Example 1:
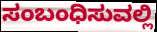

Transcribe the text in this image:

ಸಂಬಂಧಿಸುವಲ್ಲಿ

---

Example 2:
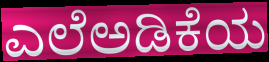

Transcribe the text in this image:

ಎಲೆಅಡಿಕೆಯ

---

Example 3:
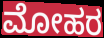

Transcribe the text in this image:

ಮೋಹರ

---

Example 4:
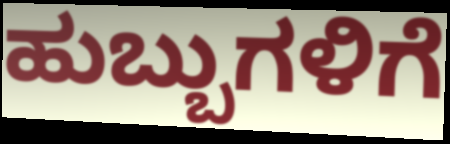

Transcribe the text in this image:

ಹುಬ್ಬುಗಳಿಗೆ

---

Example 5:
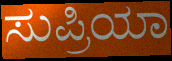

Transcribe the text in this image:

ಸುಪ್ರಿಯಾ